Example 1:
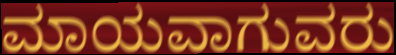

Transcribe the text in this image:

ಮಾಯವಾಗುವರು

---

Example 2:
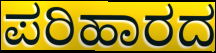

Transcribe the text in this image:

ಪರಿಹಾರದ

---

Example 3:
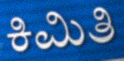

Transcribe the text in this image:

ಕಿಮಿತಿ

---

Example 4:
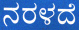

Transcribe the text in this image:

ನರಳದೆ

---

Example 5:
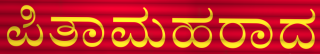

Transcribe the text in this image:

ಪಿತಾಮಹರಾದ